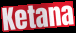
Ketana